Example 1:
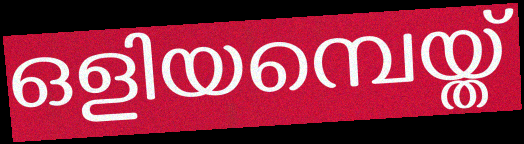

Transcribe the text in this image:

ഒളിയമ്പെയ്ത്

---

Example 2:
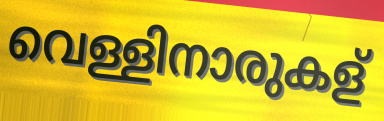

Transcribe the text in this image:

വെള്ളിനാരുകള്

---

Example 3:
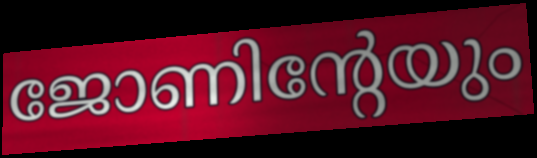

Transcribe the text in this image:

ജോണിന്റേയും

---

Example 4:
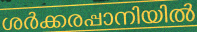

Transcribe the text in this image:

ശർക്കരപ്പാനിയിൽ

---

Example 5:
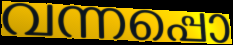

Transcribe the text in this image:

വന്നപ്പൊ